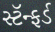
સ્ટૅન્ફર્ડ